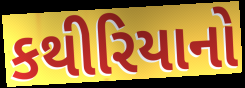
કથીરિયાનો